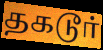
தகடூர்